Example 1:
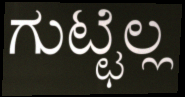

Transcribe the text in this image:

ಗುಟ್ಟೆಲ್ಲ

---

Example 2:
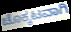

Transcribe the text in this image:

ಚೊಕ್ಕಟವಾಗಿ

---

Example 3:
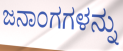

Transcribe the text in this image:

ಜನಾಂಗಗಳನ್ನು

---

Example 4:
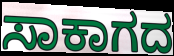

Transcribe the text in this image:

ಸಾಕಾಗದ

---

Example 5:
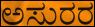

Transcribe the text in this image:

ಅಸುರರ